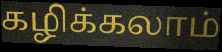
கழிக்கலாம்